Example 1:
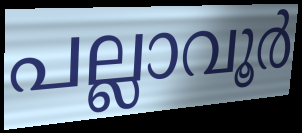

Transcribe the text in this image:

പല്ലാവൂർ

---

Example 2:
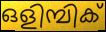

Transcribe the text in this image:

ഒളിമ്പിക്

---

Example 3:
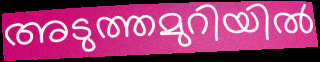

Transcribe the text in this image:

അടുത്തമുറിയിൽ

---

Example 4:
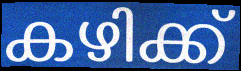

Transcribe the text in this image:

കഴിക്ക്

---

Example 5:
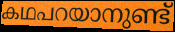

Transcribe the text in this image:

കഥപറയാനുണ്ട്